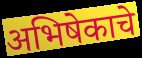
अभिषेकाचे